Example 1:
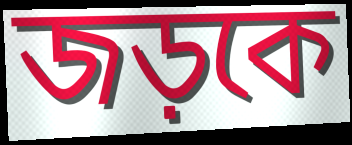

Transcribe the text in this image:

জড়কে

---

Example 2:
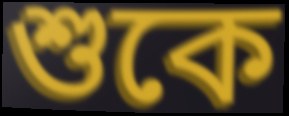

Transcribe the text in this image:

শুকে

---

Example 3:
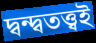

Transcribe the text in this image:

দ্বন্দ্বতত্ত্বই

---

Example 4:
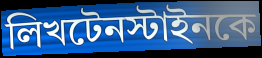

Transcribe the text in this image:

লিখটেনস্টাইনকে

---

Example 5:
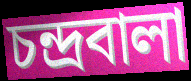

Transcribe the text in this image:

চন্দ্রবালা